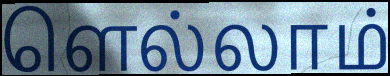
ளெல்லாம்